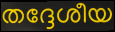
തദ്ദേശീയ